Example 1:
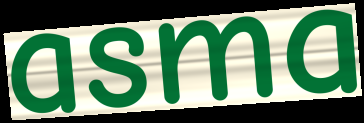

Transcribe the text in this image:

asma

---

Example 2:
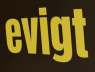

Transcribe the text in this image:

evigt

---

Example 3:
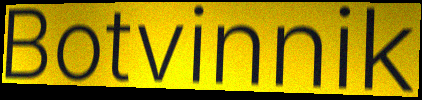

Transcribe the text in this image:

Botvinnik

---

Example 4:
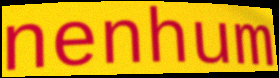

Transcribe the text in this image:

nenhum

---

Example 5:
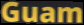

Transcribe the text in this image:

Guam